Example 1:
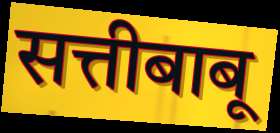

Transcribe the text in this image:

सत्तीबाबू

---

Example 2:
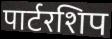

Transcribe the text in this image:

पार्टरशिप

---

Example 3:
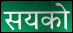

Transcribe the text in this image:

सयको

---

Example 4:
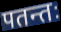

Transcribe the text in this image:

पतन्तः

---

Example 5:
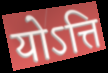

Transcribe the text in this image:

योऽत्ति